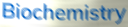
Biochemistry